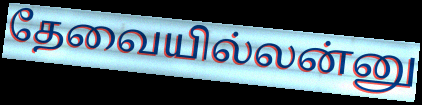
தேவையில்லன்னு